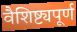
वैशिष्ट्यपूर्ण